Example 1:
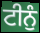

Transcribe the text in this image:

ਟੀਨੁੰ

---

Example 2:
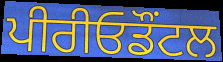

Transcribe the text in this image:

ਪੀਰੀਓਡੌਂਟਲ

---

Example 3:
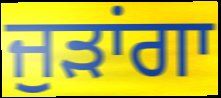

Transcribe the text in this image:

ਜੁੜਾਂਗਾ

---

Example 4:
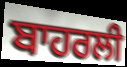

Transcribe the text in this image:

ਬਾਹਰਲੀ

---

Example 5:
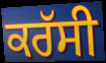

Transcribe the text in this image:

ਕਰੱਸੀ